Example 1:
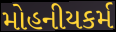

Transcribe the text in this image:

મોહનીયકર્મ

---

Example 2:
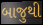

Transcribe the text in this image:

બાજુથી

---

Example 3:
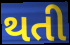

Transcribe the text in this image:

થતી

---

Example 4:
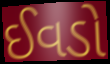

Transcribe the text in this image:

ઈવડો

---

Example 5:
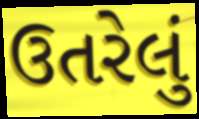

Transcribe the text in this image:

ઉતરેલું